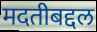
मदतीबद्दल